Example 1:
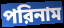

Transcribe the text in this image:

পরিনাম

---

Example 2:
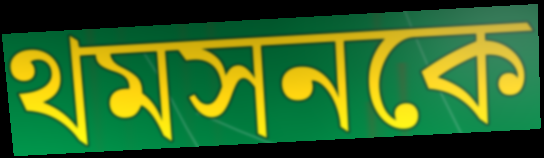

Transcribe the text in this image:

থমসনকে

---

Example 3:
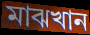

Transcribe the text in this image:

মাঝখান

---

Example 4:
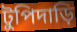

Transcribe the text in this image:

টুপিদাড়ি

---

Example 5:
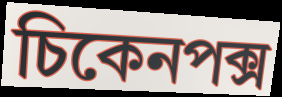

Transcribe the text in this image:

চিকেনপক্স